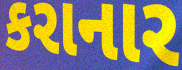
કરાનાર